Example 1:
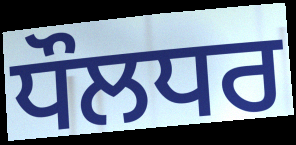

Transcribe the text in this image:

ਧੌਲਧਰ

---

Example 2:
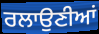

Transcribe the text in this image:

ਰਲਾਉਣੀਆਂ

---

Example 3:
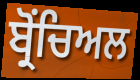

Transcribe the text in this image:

ਬ੍ਰੋਂਚਿਅਲ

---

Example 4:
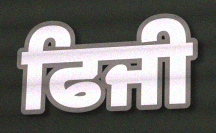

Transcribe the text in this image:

ਫਿਜੀ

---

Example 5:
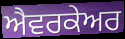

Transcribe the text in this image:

ਐਵਰਕੇਅਰ